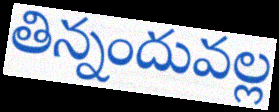
తిన్నందువల్ల